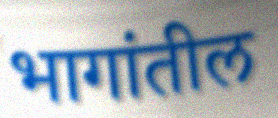
भागांतील